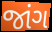
જાંગ